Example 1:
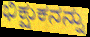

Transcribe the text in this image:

ಭಿಕ್ಷುಕನನ್ನು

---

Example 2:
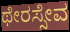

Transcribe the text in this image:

ಥೇರಸ್ಸೇವ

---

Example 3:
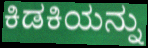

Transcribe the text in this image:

ಕಿಡಕಿಯನ್ನು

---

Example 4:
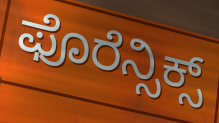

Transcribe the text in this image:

ಫೊರೆನ್ಸಿಕ್ಸ್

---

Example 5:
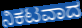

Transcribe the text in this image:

ನಿಕಟವಾದ